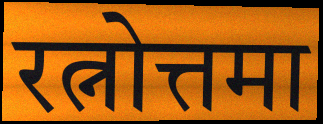
रत्नोत्तमा